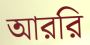
আররি